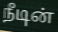
நீடின்